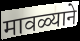
मावळ्याने